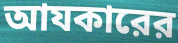
আযকারের